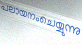
പലായനംചെയ്യുന്നു